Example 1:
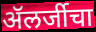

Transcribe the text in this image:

ॲलर्जीचा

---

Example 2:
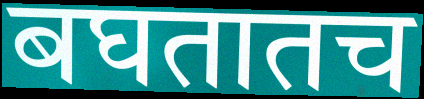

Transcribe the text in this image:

बघतातच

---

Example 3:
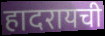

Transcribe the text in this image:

हादरायची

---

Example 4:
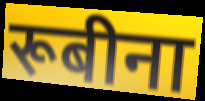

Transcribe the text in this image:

रूबीना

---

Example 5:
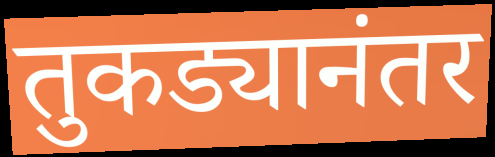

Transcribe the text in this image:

तुकड्यानंतर